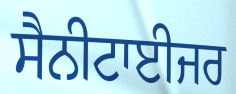
ਸੈਨੀਟਾਈਜਰ